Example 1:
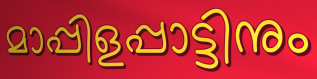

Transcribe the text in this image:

മാപ്പിളപ്പാട്ടിനും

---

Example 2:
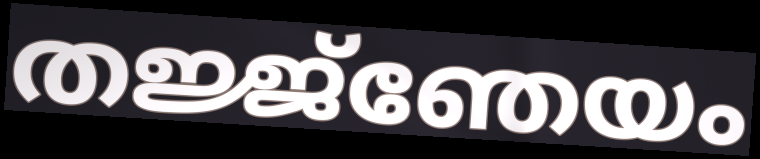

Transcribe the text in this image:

തജ്ജ്ഞേയം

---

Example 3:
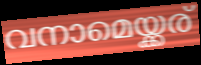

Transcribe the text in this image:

വനാമെയ്ക്കര്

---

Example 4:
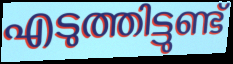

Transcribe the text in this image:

എടുത്തിട്ടുണ്ട്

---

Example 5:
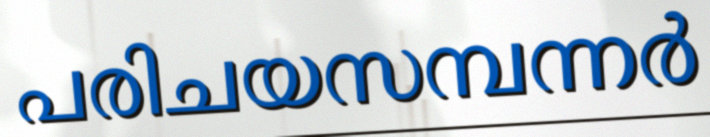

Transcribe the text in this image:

പരിചയസമ്പന്നർ